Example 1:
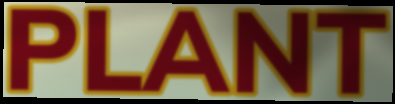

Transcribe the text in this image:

PLANT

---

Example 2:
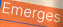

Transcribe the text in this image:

Emerges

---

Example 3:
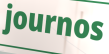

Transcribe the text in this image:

journos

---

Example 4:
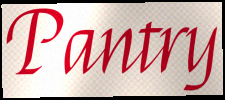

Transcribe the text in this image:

Pantry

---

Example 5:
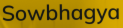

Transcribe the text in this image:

Sowbhagya